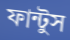
ফান্টুস